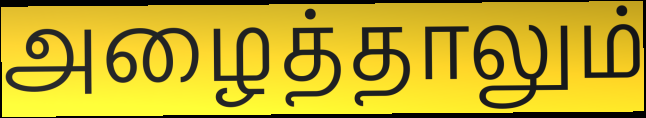
அழைத்தாலும்